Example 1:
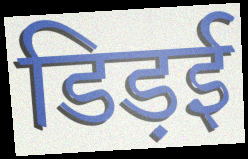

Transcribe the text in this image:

डिड़ई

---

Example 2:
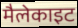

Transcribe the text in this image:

मैलेकाइट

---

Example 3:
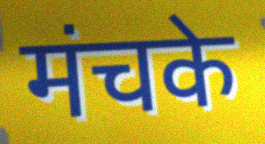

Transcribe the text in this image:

मंचके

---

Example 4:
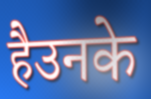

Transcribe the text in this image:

हैउनके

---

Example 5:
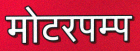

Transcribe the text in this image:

मोटरपम्प